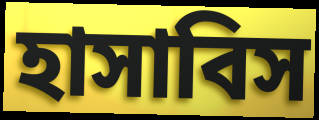
হাসাবিস